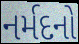
નર્મદનો